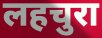
लहचुरा